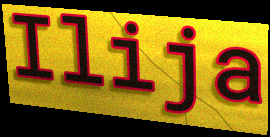
Ilija